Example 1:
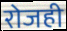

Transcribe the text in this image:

रोजही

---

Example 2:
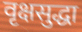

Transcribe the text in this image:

वृक्षसुद्धा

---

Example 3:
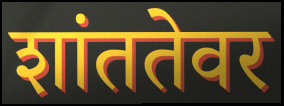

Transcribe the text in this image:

शांततेवर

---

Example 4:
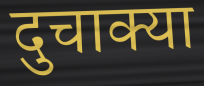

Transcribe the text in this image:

दुचाक्या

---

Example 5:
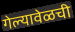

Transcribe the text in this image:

गेल्यावेळची